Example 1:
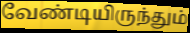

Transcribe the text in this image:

வேண்டியிருந்தும்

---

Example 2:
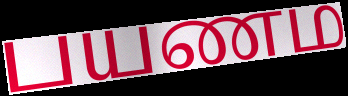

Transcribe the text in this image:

பயணம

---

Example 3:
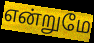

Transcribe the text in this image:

என்றுமே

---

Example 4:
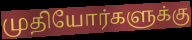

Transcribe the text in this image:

முதியோர்களுக்கு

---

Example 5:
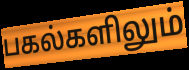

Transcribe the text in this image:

பகல்களிலும்